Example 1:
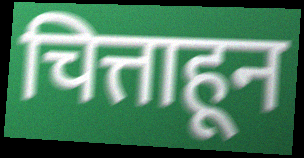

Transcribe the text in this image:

चित्ताहून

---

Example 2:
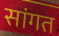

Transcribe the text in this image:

सांगत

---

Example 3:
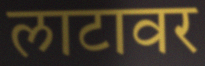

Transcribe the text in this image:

लाटावर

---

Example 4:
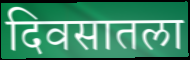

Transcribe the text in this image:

दिवसातला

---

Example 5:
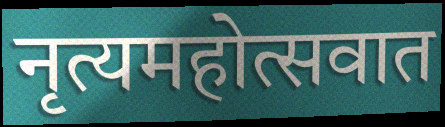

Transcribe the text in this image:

नृत्यमहोत्सवात